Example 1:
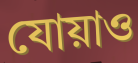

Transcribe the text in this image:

যোয়াও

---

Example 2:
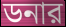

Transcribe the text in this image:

ডনার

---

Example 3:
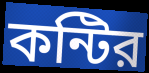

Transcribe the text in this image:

কন্টির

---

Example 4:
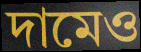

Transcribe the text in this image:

দামেও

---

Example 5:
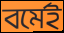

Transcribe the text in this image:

বর্মেই